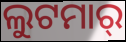
ଲୁଟମାର୍